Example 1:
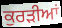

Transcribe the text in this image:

ਕੁਰੜੀਆਂ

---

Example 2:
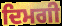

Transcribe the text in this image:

ਦਿਮਗੀ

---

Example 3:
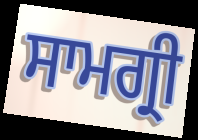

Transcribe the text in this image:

ਸਾਮਗ੍ਰੀ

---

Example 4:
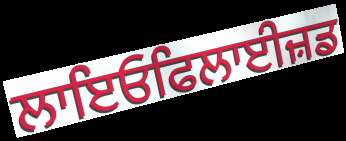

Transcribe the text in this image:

ਲਾਇਓਫਿਲਾਈਜ਼ਡ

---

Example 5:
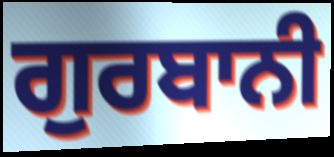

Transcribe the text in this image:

ਗੁਰਬਾਨੀ